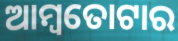
ଆମ୍ବତୋଟାର